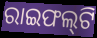
ରାଇଫଲ୍‌ଟି